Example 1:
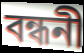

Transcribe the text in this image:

বন্ধনী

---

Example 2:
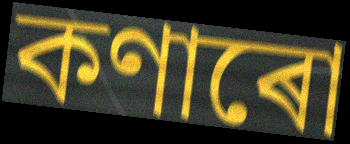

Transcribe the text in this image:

কণাৰো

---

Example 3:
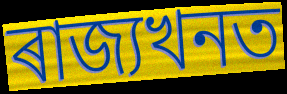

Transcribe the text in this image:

ৰাজ্যখনত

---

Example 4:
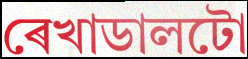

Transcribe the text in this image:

ৰেখাডালটো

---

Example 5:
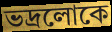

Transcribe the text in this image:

ভদ্ৰলোকে